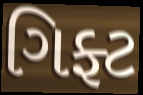
ગિફ્ટ